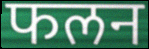
फलन